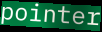
pointer